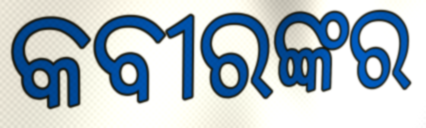
କବୀରଙ୍କର